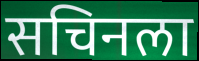
सचिनला